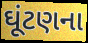
ઘૂંટણના